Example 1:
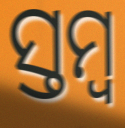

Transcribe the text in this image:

ସ୍ତମ୍ବ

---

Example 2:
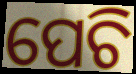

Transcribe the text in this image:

ପେଚି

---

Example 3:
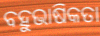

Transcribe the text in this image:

ବହୁଭାଷିକତା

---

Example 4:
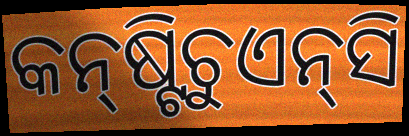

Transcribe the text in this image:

କନ୍‍ଷ୍ଟିଚୁଏନ୍‍ସି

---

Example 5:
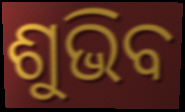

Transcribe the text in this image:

ଶୁଭିବ